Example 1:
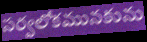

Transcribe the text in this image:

సర్వలోకమునకును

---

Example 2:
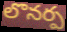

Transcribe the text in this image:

లొనర్ప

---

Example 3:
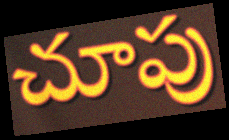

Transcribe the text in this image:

చూపు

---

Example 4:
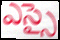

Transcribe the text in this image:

ఎస్సై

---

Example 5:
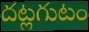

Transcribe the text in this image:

దట్లగుటం